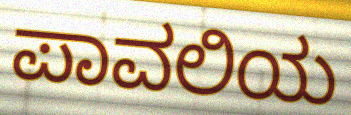
ಪಾವಲಿಯ